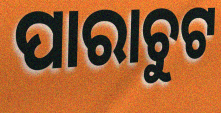
ପାରାଚୁଟ